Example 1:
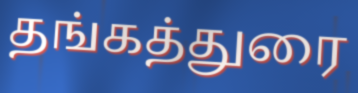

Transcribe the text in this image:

தங்கத்துரை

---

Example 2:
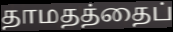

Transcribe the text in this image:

தாமதத்தைப்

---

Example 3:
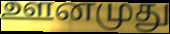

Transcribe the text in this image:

ஊனமுது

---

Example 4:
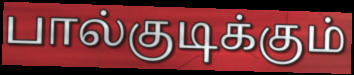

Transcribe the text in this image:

பால்குடிக்கும்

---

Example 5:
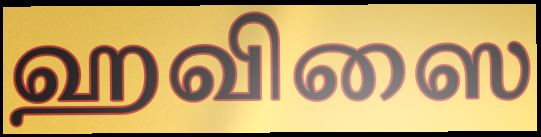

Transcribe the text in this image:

ஹவிஸை